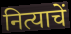
नित्याचें